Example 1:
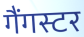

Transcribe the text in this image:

गैंगस्टर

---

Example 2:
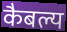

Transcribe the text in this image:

कैबल्य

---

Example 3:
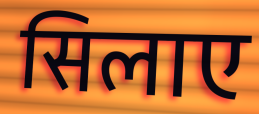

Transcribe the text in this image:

सिलाए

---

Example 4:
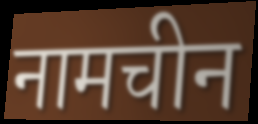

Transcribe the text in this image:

नामचीन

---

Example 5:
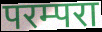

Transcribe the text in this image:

परम्परा